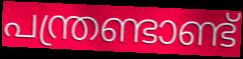
പന്ത്രണ്ടാണ്ട്